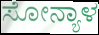
ಸೋನ್ಯಾಳ